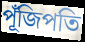
পূঁজিপতি